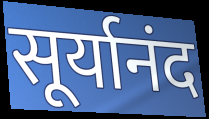
सूर्यानंद